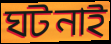
ঘটনাই